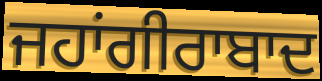
ਜਹਾਂਗੀਰਾਬਾਦ